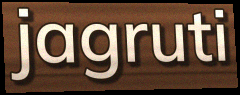
jagruti